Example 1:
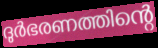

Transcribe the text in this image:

ദുർഭരണത്തിന്റെ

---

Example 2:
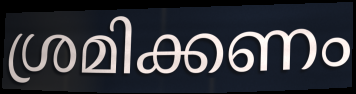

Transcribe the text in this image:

ശ്രമിക്കണം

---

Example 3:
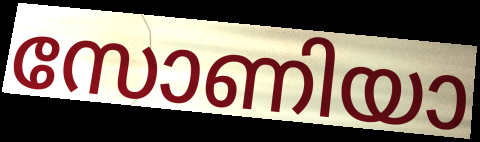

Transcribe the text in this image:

സോണിയാ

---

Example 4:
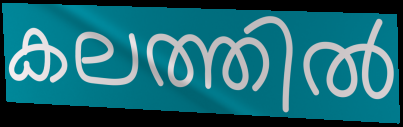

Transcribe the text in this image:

കലത്തിൽ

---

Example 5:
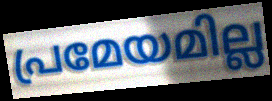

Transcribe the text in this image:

പ്രമേയമില്ല